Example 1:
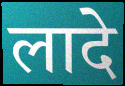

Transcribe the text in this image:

लादे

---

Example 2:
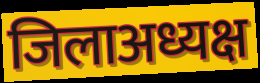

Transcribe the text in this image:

जिलाअध्यक्ष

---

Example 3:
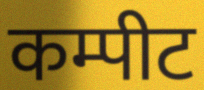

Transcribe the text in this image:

कम्पीट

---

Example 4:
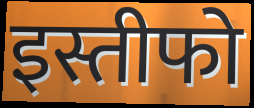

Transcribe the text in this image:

इस्तीफो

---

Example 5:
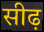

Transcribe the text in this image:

सीढ़